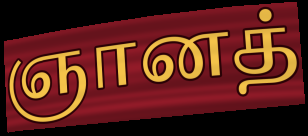
ஞானத்